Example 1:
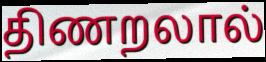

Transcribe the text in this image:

திணறலால்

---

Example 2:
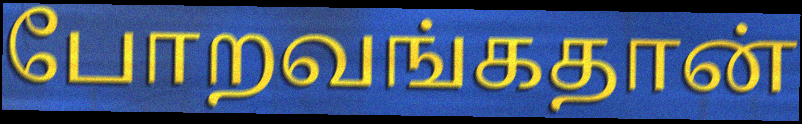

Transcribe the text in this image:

போறவங்கதான்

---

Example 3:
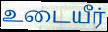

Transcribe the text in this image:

உடையீர்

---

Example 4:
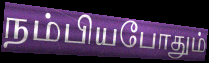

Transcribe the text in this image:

நம்பியபோதும்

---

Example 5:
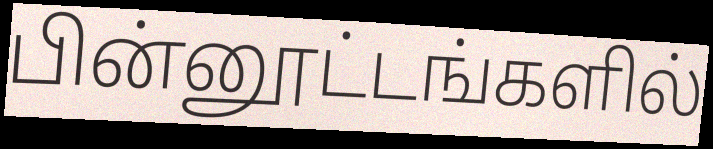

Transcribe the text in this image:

பின்னூட்டங்களில்